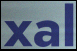
xal